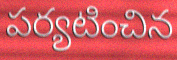
పర్యటించిన